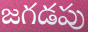
జగడపు